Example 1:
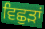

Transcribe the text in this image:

ਵਿਛੁੜਾਂ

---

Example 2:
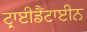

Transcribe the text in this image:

ਟ੍ਰਾਈਡੈਂਟਾਈਨ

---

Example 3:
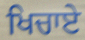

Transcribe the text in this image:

ਖਿਚਾਏ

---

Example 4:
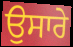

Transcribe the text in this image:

ਉਸਾਰੇ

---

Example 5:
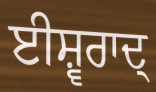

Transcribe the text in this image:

ਈਸ਼੍ਵਰਾਦ੍